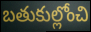
బతుకుల్లోంచి